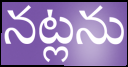
నట్లను